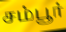
சம்பூர்